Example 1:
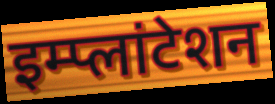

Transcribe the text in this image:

इम्प्लांटेशन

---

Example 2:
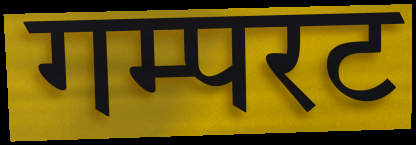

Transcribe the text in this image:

गम्परट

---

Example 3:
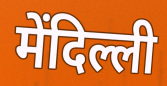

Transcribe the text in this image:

मेंदिल्ली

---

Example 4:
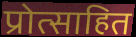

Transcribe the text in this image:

प्रोत्‍साहित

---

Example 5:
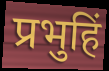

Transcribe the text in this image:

प्रभुहिं